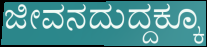
ಜೀವನದುದ್ದಕ್ಕೂ